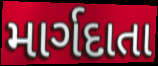
માર્ગદાતા